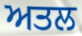
ਅਤਲ